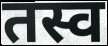
तस्व